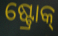
ଷ୍ଟ୍ରୋକ୍